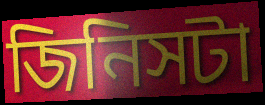
জিনিসটা